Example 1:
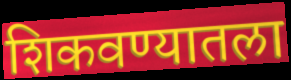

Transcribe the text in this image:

शिकवण्यातला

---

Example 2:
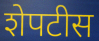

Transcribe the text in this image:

शेपटीस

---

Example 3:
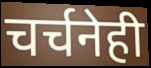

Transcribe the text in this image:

चर्चनेही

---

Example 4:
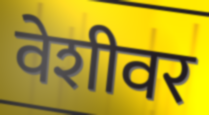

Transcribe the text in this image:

वेशीवर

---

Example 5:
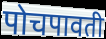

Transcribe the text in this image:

पोचपावती